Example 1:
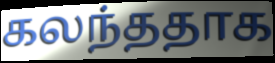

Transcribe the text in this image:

கலந்ததாக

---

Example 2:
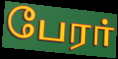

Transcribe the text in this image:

பேரர்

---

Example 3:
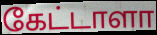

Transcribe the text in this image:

கேட்டாளா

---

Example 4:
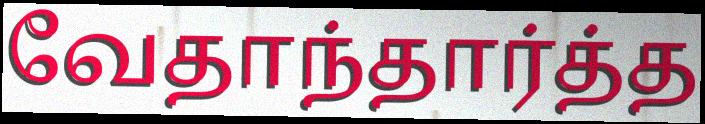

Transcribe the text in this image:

வேதாந்தார்த்த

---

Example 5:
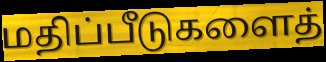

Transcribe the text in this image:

மதிப்பீடுகளைத்